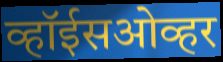
व्हॉईसओव्हर